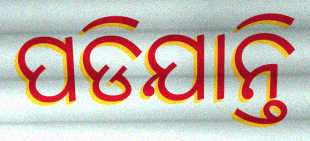
ପଡିଯାନ୍ତି